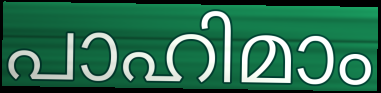
പാഹിമാം